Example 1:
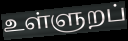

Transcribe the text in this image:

உள்ளுறப்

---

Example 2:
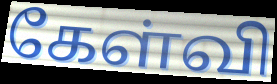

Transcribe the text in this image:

கேள்வி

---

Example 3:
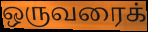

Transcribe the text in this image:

ஒருவரைக்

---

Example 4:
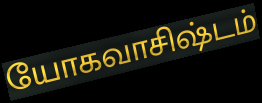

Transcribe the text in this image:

யோகவாசிஷ்டம்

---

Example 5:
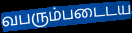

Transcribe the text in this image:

வபரும்படைடய